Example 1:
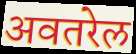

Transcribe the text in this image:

अवतरेल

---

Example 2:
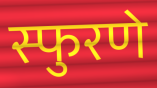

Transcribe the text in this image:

स्फुरणे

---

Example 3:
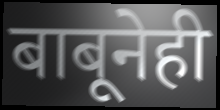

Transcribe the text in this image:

बाबूनेही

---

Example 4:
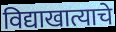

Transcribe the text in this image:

विद्याखात्याचे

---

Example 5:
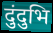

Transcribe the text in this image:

दुंदुभि